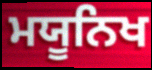
ਮਯੂਨਿਖ